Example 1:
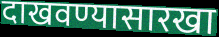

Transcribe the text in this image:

दाखवण्यासारखा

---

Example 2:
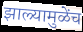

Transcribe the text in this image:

झाल्यामुळेंच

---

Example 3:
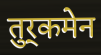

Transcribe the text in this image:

तुर्कमेन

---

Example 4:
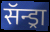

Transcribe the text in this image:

सॅन्ड्रा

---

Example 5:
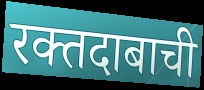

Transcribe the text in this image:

रक्तदाबाची